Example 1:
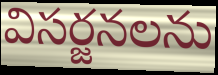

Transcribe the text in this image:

విసర్జనలను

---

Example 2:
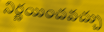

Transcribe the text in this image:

నిర్ణయించవచ్చు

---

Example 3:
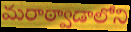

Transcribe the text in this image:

మరాఠ్వాడాలోని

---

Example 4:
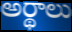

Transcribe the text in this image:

అర్థాలు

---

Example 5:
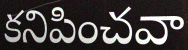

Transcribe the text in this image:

కనిపించవా